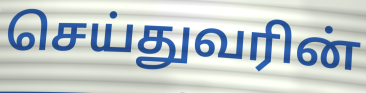
செய்துவரின்